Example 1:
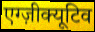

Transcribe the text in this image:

एग्ज़ीक्यूटिव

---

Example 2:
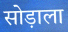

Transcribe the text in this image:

सोड़ाला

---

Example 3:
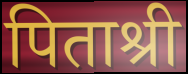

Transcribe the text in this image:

पिताश्री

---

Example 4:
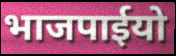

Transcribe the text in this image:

भाजपाईयो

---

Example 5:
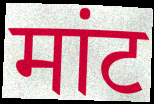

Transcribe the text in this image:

मांट